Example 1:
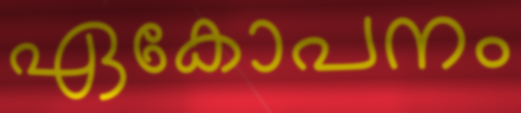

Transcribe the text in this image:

ഏകോപനം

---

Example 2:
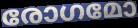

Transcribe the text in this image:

രോഗമോ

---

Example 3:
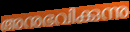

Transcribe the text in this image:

അനുഭവിക്കുന്നു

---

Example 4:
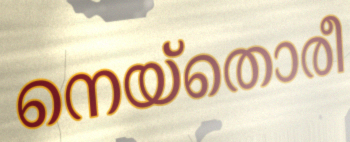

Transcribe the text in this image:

നെയ്തൊരീ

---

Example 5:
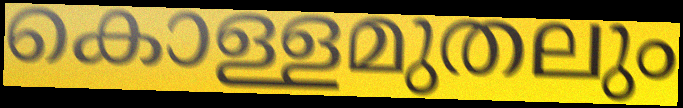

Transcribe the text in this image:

കൊള്ളമുതലും